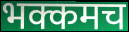
भक्कमच